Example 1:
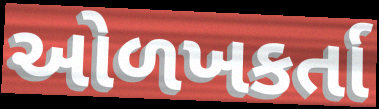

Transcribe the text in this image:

ઓળખકર્તા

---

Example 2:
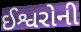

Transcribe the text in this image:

ઈશ્વરોની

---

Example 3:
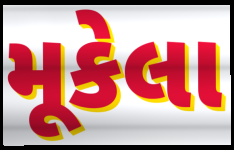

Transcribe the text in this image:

મૂકેલા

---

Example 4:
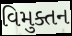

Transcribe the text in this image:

વિમુક્તન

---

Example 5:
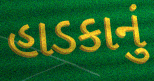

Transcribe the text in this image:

હાડકાનું